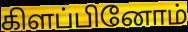
கிளப்பினோம்